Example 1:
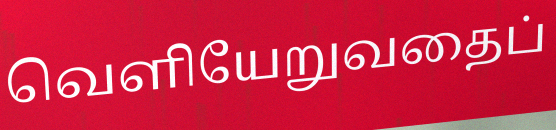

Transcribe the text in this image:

வெளியேறுவதைப்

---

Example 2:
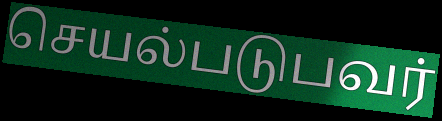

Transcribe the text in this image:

செயல்படுபவர்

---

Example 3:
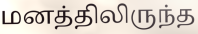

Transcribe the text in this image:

மனத்திலிருந்த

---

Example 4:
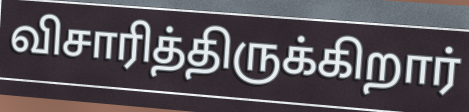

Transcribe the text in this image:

விசாரித்திருக்கிறார்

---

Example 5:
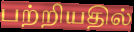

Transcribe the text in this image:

பற்றியதில்